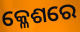
କ୍ଳେଶରେ